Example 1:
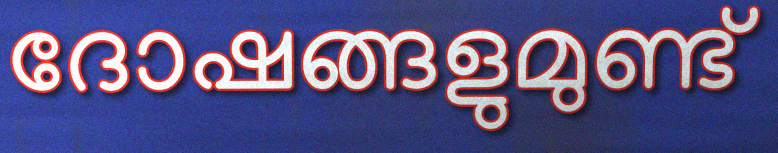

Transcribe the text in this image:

ദോഷങ്ങളുമുണ്ട്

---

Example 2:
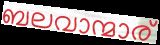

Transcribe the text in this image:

ബലവാന്മാര്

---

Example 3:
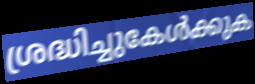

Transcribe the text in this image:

ശ്രദ്ധിച്ചുകേൾക്കുക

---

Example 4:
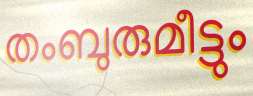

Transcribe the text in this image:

തംബുരുമീട്ടും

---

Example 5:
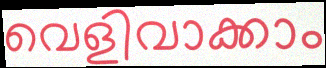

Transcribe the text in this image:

വെളിവാക്കാം